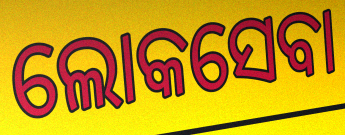
ଲୋକସେବା